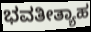
ಭವತೀತ್ಯಾಹ